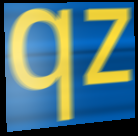
qz